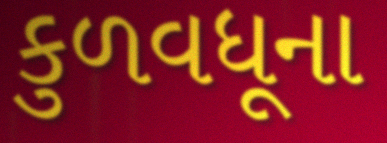
કુળવધૂના